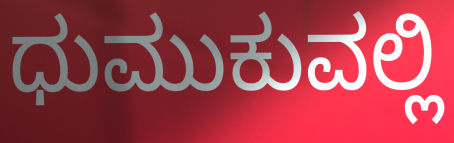
ಧುಮುಕುವಲ್ಲಿ